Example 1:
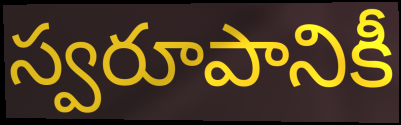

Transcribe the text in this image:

స్వరూపానికీ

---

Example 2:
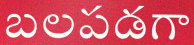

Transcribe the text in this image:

బలపడగా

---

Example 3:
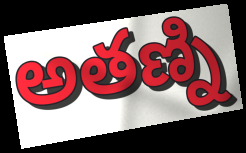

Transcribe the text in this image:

అతణ్ని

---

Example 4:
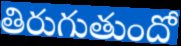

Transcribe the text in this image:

తిరుగుతుందో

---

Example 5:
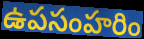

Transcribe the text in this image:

ఉపసంహరిం